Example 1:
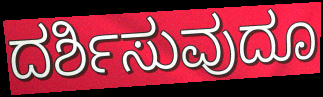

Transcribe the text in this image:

ದರ್ಶಿಸುವುದೂ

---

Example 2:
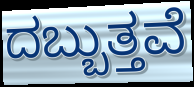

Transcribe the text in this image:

ದಬ್ಬುತ್ತವೆ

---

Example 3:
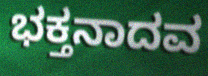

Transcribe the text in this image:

ಭಕ್ತನಾದವ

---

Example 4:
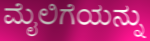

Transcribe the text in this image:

ಮೈಲಿಗೆಯನ್ನು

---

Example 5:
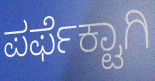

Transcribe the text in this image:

ಪರ್ಫೆಕ್ಟಾಗಿ